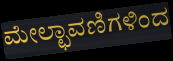
ಮೇಲ್ಛಾವಣಿಗಳಿಂದ